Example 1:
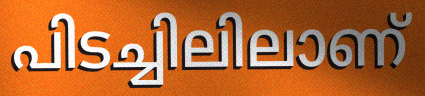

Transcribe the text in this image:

പിടച്ചിലിലാണ്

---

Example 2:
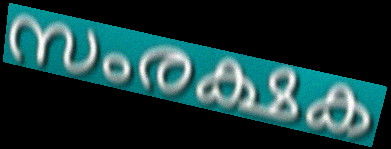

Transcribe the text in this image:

സംരക്ഷക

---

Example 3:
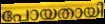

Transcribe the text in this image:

പോയതായി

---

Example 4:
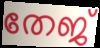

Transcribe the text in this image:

തേജ്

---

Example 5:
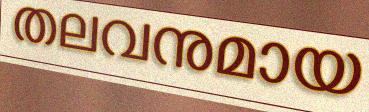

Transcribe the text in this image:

തലവനുമായ